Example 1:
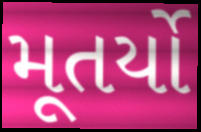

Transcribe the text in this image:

મૂતર્યો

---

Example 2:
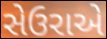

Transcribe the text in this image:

સેઉરાએ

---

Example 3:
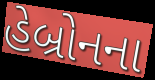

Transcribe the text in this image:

હેબ્રોનના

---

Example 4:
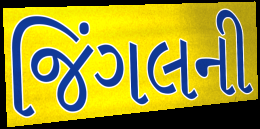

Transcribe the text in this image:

જિંગલની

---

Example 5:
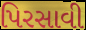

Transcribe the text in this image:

પિરસાવી